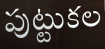
పుట్టుకల